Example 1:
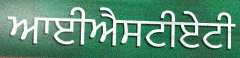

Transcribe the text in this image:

ਆਈਐਸਟੀਏਟੀ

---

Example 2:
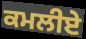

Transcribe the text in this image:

ਕਮਲੀਏ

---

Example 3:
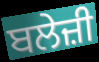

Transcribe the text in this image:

ਬਲੇਜ਼ੀ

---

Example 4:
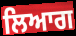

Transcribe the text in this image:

ਲਿਆਗ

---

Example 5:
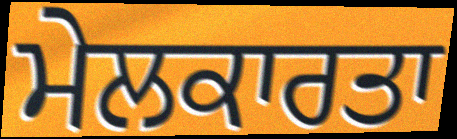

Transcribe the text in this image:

ਮੇਲਕਾਰਤਾ